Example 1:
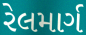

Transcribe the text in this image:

રેલમાર્ગ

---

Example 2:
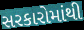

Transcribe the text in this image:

સરકારોમાંથી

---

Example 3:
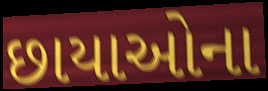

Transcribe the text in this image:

છાયાઓના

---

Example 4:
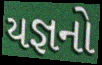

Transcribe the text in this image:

યજ્ઞનો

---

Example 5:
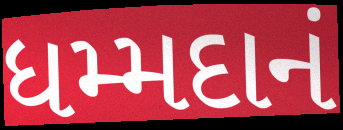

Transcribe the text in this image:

ધમ્મદાનં